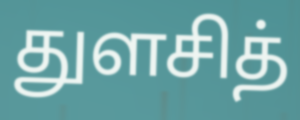
துளசித்